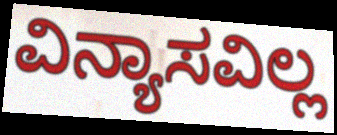
ವಿನ್ಯಾಸವಿಲ್ಲ